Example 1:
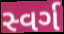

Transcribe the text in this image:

સ્વર્ગ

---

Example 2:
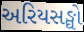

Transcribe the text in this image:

અરિયસઙ્ઘો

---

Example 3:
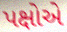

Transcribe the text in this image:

પક્ષોએ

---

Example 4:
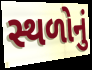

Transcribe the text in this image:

સ્થળોનું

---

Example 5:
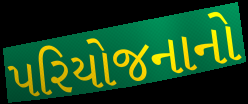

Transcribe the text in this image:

પરિયોજનાનો